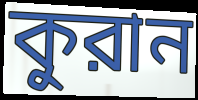
কুরান